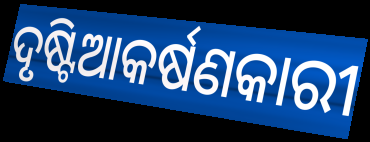
ଦୃଷ୍ଟିଆକର୍ଷଣକାରୀ